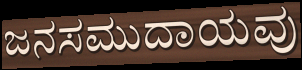
ಜನಸಮುದಾಯವು